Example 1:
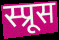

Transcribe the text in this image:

स्प्रूस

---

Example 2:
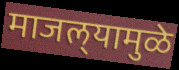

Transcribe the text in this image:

माजल्यामुळे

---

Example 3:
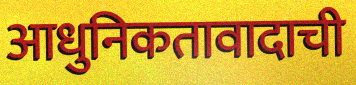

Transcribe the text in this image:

आधुनिकतावादाची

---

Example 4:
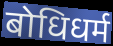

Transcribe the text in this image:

बोधिधर्म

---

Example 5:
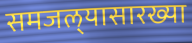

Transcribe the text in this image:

समजल्यासारख्या